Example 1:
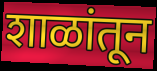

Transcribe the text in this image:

शाळांतून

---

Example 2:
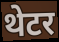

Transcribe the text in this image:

थेटर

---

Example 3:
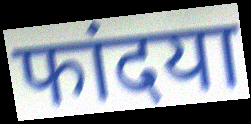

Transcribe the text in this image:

फांदया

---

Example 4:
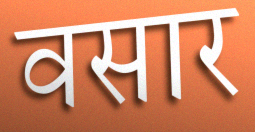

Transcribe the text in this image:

वसार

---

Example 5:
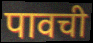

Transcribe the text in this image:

पावची